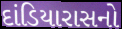
દાંડિયારાસનો